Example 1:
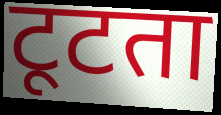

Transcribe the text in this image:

टूटता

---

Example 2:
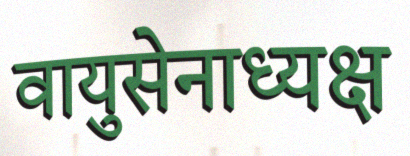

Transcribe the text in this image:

वायुसेनाध्यक्ष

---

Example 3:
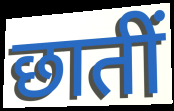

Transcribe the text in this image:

छातीं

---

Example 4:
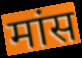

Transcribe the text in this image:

मांस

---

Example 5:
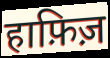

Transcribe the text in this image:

हाफ़िज़